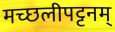
मच्छलीपट्टनम्